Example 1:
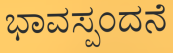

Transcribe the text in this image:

ಭಾವಸ್ಪಂದನೆ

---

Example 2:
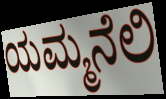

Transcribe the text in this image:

ಯಮ್ಮನೆಲಿ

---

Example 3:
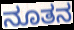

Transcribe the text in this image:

ನೂತನ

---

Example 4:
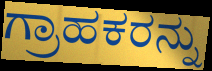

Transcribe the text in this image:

ಗ್ರಾಹಕರನ್ನು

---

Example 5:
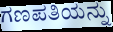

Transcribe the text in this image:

ಗಣಪತಿಯನ್ನು